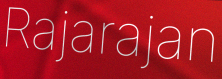
Rajarajan